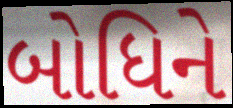
બોધિને